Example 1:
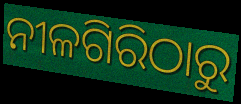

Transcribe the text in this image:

ନୀଳଗିରିଠାରୁ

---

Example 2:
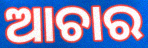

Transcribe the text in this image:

ଆଚାର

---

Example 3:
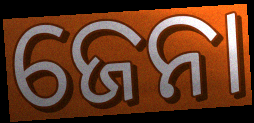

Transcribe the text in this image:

ଜେନା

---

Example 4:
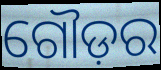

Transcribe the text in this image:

ଗୌଡ଼ର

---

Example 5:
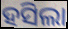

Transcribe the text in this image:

ହସିଲା